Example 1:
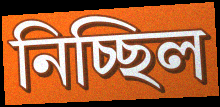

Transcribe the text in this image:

নিচ্ছিল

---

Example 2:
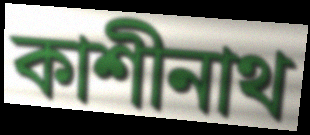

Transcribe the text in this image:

কাশীনাথ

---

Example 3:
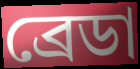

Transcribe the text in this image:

ব্রেডা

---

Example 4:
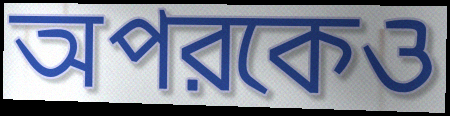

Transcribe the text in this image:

অপরকেও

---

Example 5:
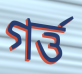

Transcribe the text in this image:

গর্ত্ত